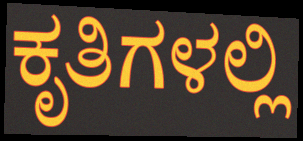
ಕೃತಿಗಳಲ್ಲಿ